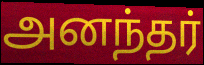
அனந்தர்